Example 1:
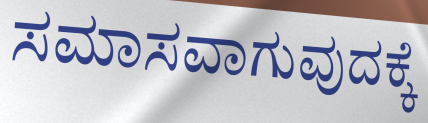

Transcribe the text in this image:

ಸಮಾಸವಾಗುವುದಕ್ಕೆ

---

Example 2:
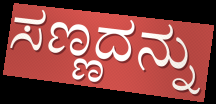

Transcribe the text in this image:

ಸಣ್ಣದನ್ನು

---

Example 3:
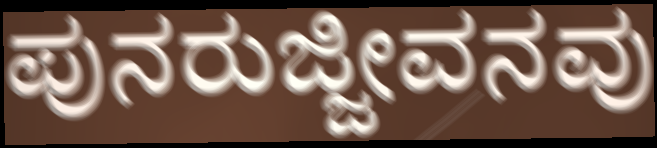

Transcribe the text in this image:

ಪುನರುಜ್ಜೀವನವು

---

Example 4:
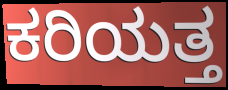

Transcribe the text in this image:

ಕರಿಯತ್ತ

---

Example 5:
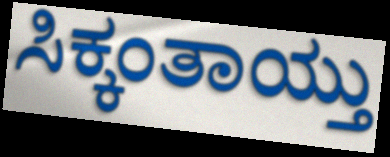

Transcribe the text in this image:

ಸಿಕ್ಕಂತಾಯ್ತು